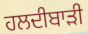
ਹਲਦੀਬਾੜੀ